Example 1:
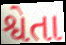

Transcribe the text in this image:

શ્વેતા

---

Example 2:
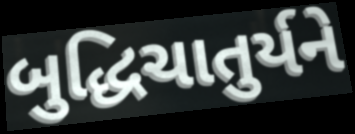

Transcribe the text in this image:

બુદ્ધિચાતુર્યને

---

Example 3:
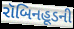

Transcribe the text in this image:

રૉબિનહૂડની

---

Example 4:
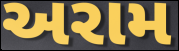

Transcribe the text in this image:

અરામ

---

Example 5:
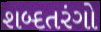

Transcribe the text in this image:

શબ્દતરંગો